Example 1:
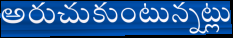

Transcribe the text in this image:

అరుచుకుంటున్నట్లు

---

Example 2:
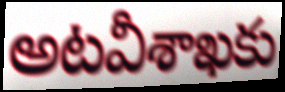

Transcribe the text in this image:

అటవీశాఖకు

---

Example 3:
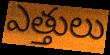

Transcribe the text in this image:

ఎత్తులు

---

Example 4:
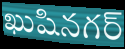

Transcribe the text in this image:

ఖుషినగర్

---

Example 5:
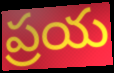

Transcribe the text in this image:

ప్రయ